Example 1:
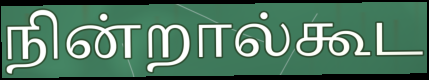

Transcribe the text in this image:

நின்றால்கூட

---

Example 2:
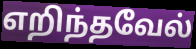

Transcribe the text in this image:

எறிந்தவேல்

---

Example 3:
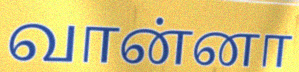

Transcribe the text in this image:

வான்னா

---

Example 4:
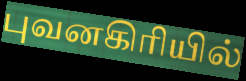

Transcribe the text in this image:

புவனகிரியில்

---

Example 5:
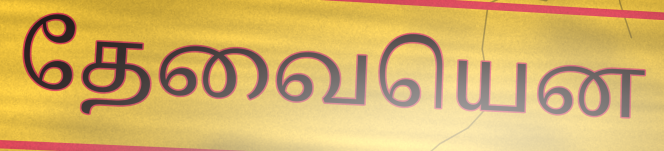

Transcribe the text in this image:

தேவையென